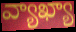
వ్యాఖ్యా